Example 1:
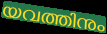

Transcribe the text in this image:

യവത്തിനും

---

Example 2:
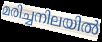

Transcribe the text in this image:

മരിച്ചനിലയിൽ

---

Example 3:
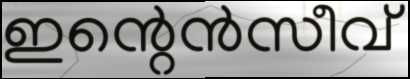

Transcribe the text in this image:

ഇന്റെൻസീവ്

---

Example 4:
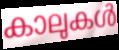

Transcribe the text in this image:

കാലുകൾ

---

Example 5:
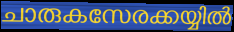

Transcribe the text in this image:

ചാരുകസേരക്കയ്യിൽ